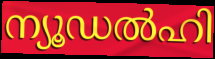
ന്യൂഡൽഹി